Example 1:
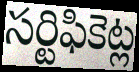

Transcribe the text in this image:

సర్టిఫికెట్ల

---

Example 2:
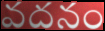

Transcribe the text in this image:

వదనం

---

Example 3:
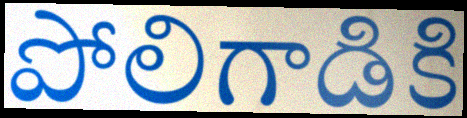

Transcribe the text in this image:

పోలిగాడికి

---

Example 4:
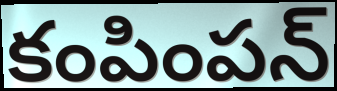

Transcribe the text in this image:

కంపింపన్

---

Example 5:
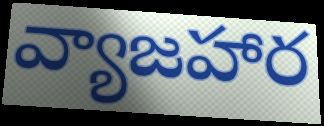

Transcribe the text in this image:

వ్యాజహార